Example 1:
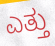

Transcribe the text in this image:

ಎತ್ತು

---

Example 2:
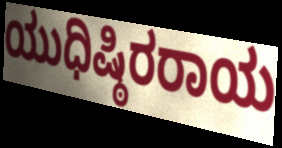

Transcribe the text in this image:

ಯುಧಿಷ್ಠಿರರಾಯ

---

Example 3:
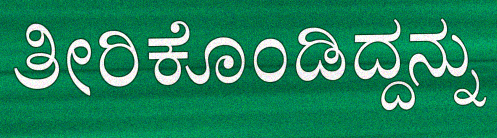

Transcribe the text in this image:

ತೀರಿಕೊಂಡಿದ್ದನ್ನು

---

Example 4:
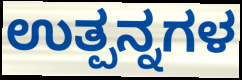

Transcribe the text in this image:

ಉತ್ಪನ್ನಗಳ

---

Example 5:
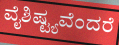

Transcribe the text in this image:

ವೈಶಿಷ್ಟ್ಯವೆಂದರೆ